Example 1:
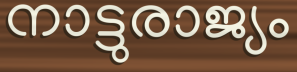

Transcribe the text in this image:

നാട്ടുരാജ്യം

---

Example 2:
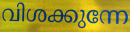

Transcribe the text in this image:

വിശക്കുന്നേ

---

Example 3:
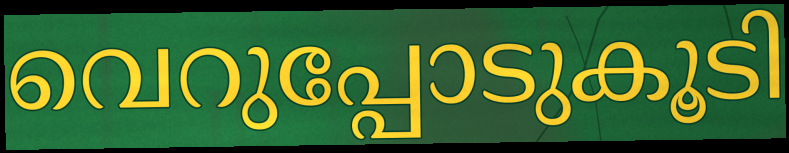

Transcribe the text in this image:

വെറുപ്പോടുകൂടി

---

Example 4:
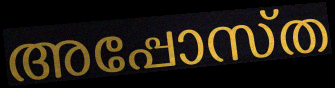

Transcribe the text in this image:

അപ്പോസ്‌ത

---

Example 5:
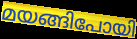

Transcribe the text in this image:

മയങ്ങിപോയി